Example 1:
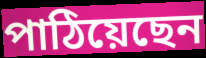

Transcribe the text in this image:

পাঠিয়েছেন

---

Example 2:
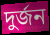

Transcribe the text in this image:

দুর্জন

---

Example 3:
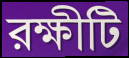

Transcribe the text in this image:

রক্ষীটি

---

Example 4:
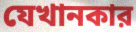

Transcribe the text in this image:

যেখানকার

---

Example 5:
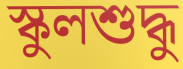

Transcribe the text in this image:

স্কুলশুদ্ধু